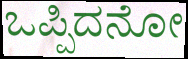
ಒಪ್ಪಿದನೋ